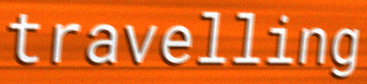
travelling